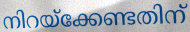
നിറയ്ക്കേണ്ടതിന്